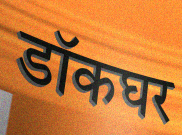
डॉकघर